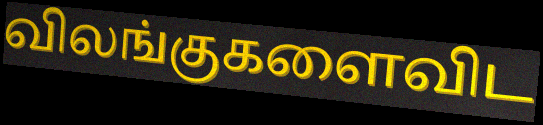
விலங்குகளைவிட